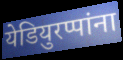
येडियुरप्पांना